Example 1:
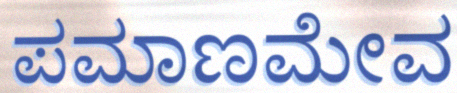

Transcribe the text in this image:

ಪಮಾಣಮೇವ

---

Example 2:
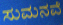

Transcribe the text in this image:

ಸುಮನವೆ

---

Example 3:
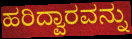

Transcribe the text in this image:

ಹರಿದ್ವಾರವನ್ನು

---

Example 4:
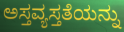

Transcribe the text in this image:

ಅಸ್ತವ್ಯಸ್ತತೆಯನ್ನು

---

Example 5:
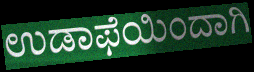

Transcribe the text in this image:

ಉಡಾಫೆಯಿಂದಾಗಿ